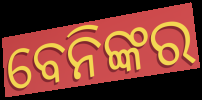
ବେନିଙ୍କର